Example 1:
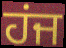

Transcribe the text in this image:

ਹਂਜ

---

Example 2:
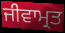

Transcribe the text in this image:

ਜੀਵਾਮ੍ਰਤ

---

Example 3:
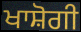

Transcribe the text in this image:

ਖਾਸ਼ੋਗੀ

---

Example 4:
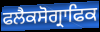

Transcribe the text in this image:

ਫਲੈਕਸੋਗ੍ਰਾਫਿਕ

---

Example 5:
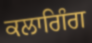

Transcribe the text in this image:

ਕਲਾਗਿੰਗ